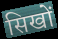
सिखों